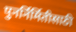
पुनर्निर्मितीसाठी